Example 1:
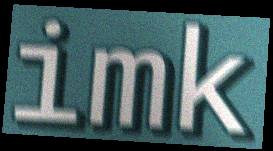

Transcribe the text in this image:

imk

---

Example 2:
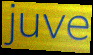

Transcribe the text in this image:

juve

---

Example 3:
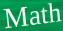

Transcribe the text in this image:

Math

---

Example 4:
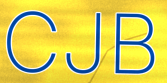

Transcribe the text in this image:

CJB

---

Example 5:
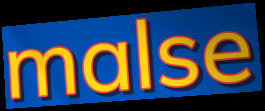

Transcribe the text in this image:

malse